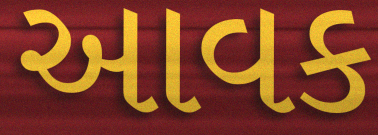
આવક